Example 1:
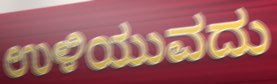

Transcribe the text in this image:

ಉಳಿಯುವದು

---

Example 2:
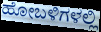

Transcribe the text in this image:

ಹೋಬಳಿಗಳಲ್ಲಿ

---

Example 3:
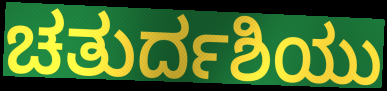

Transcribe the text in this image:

ಚತುರ್ದಶಿಯು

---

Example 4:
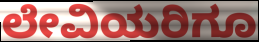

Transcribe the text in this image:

ಲೇವಿಯರಿಗೂ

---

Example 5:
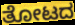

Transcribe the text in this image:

ತೋಟದ